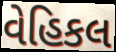
વેહિકલ